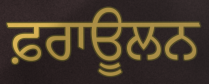
ਫ਼ਰਾਊਲਨ